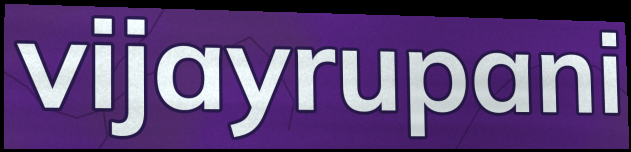
vijayrupani